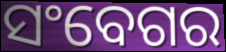
ସଂବେଗର